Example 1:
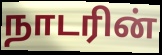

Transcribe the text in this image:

நாடரின்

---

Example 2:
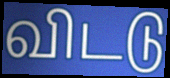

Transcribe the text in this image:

விடடு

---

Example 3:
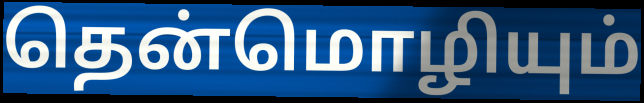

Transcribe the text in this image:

தென்மொழியும்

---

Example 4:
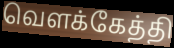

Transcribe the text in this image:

வெளக்கேத்தி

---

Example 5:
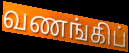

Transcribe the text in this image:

வணங்கிப்